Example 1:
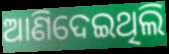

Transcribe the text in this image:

ଆଣିଦେଇଥିଲି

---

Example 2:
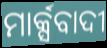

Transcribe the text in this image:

ମାର୍କ୍ସବାଦୀ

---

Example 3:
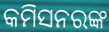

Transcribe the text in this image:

କମିସନରଙ୍କ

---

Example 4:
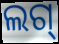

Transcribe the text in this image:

ଲଗ୍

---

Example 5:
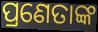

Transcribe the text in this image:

ପ୍ରଣେତାଙ୍କ